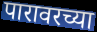
पारावरच्या